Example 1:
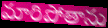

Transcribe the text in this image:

మారిపోతాను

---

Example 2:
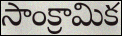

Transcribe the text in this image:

సాంక్రామిక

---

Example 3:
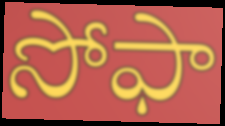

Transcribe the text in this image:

సోఫా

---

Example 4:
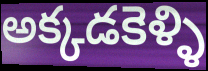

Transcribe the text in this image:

అక్కడకెళ్ళి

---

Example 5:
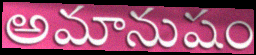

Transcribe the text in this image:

అమానుషం